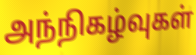
அந்நிகழ்வுகள்